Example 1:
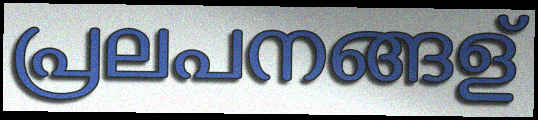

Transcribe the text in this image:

പ്രലപനങ്ങള്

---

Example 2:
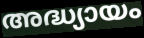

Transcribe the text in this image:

അദ്ധ്യായം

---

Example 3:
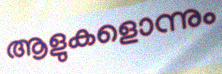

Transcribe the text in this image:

ആളുകളൊന്നും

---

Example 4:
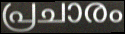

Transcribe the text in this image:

പ്രചാരം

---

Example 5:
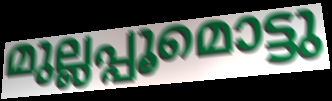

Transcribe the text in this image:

മുല്ലപ്പൂമൊട്ടു